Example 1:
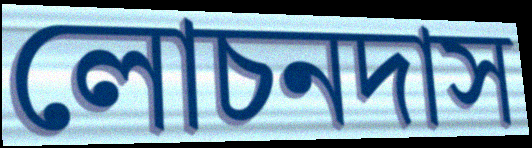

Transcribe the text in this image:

লোচনদাস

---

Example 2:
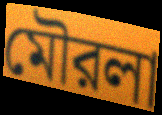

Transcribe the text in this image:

মৌরলা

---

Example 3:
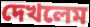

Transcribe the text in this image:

দেখলেম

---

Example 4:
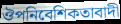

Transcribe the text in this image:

ঔপনিবেশিকতাবাদী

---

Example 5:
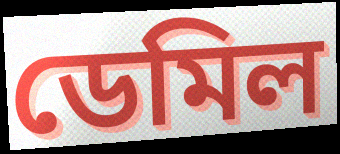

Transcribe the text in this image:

ডেমিল